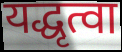
यद्धृत्वा